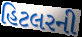
હિટલરની